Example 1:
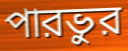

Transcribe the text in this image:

পারভুর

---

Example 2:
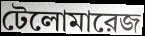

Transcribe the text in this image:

টেলোমারেজ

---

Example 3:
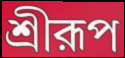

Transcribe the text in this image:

শ্রীরূপ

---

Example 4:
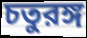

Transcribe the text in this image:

চতুরঙ্গ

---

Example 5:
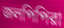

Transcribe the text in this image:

জলপিপিরা